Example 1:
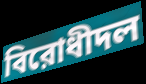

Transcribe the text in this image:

বিরোধীদল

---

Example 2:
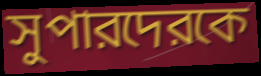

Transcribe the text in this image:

সুপারদেরকে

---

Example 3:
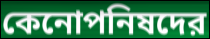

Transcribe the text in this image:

কেনোপনিষদের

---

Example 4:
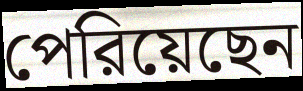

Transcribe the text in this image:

পেরিয়েছেন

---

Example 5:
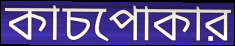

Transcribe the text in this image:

কাচপোকার